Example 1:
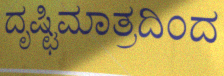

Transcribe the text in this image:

ದೃಷ್ಟಿಮಾತ್ರದಿಂದ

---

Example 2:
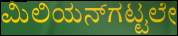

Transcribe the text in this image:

ಮಿಲಿಯನ್‌ಗಟ್ಟಲೇ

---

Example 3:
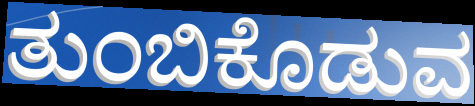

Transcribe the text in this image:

ತುಂಬಿಕೊಡುವ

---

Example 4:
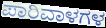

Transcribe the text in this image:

ಪಾರಿವಾಳಗಳ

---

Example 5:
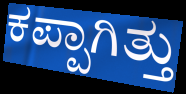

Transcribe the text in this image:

ಕಪ್ಪಾಗಿತ್ತು